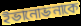
ইভানোভনাকে